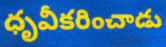
ధృవీకరించాడు